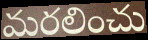
మరలించు